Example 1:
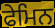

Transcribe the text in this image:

ਫੇਮਿਨ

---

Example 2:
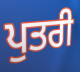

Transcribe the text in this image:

ਪੁਤਰੀ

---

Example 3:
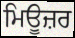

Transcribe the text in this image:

ਮਿਊਜ਼ਰ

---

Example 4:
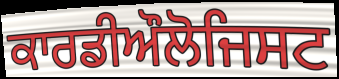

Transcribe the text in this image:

ਕਾਰਡੀਔਲੋਜਿਸਟ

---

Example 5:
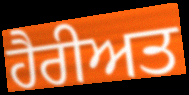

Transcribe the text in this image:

ਹੈਰੀਅਤ